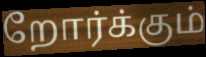
றோர்க்கும்